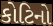
કોટિનો